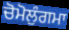
ਚੋਮੋਲੁੰਗਮਾ